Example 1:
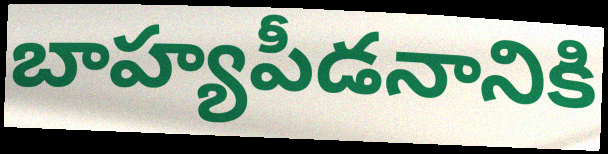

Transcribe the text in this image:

బాహ్యపీడనానికి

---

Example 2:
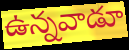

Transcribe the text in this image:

ఉన్నవాడూ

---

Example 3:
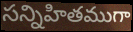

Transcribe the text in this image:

సన్నిహితముగా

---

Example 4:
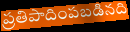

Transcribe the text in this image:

ప్రతిపాదింపబడినది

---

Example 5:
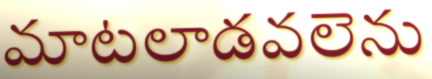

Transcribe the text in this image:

మాటలాడవలెను